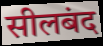
सीलबंद